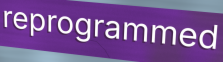
reprogrammed